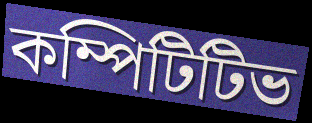
কম্পিটিটিভ